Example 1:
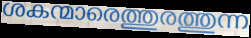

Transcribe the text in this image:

ശകന്മാരെത്തുരത്തുന്ന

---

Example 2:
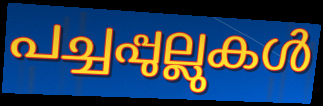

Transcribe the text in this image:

പച്ചപ്പുല്ലുകൾ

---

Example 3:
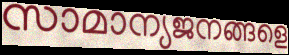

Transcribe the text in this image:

സാമാന്യജനങ്ങളെ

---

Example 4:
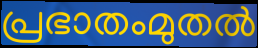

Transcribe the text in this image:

പ്രഭാതംമുതൽ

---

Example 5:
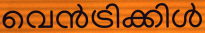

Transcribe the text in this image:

വെൻട്രിക്കിൾ